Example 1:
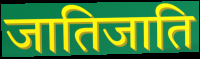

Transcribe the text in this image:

जातिजाति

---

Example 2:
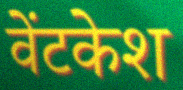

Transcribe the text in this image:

वेंटकेश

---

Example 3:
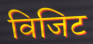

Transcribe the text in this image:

विजिट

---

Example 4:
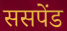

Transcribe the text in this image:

ससपेंड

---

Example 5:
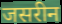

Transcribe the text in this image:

जसरीन